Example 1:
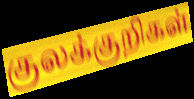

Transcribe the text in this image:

குலக்குறிகள்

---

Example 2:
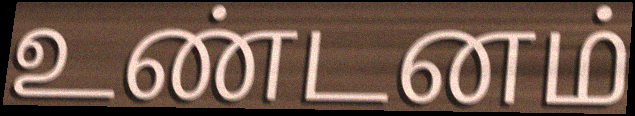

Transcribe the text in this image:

உண்டனம்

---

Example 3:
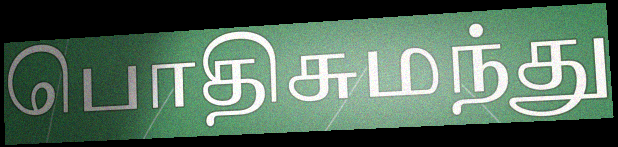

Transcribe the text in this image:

பொதிசுமந்து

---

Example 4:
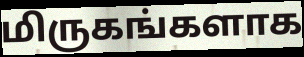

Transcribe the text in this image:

மிருகங்களாக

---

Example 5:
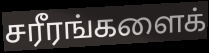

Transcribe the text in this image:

சரீரங்களைக்